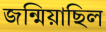
জন্মিয়াছিল